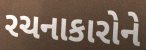
રચનાકારોને